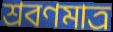
শ্রবণমাত্র